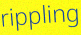
rippling